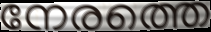
നേരത്തെ